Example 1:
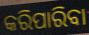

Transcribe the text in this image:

କରିପାରିବା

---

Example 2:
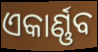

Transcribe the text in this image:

ଏକାର୍ଣ୍ଣବ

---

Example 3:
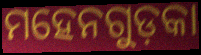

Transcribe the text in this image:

ମହେନଗୁଡ଼କା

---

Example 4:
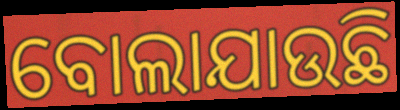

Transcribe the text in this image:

ବୋଲାଯାଉଛି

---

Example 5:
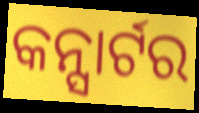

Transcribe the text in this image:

କନ୍ସାର୍ଟର